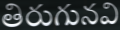
తిరుగునవి